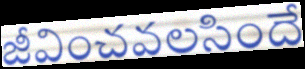
జీవించవలసిందే